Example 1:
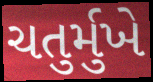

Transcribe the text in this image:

ચતુર્મુખે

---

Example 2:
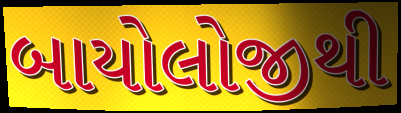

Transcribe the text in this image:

બાયોલોજીથી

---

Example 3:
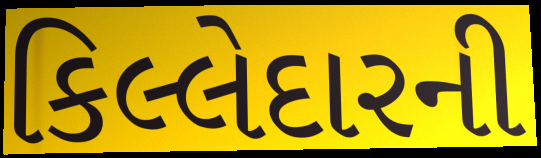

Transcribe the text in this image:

કિલ્લેદારની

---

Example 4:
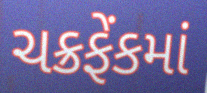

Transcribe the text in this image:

ચક્રફેંકમાં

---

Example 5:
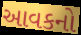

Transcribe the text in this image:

આવકનો